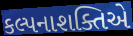
કલ્પનાશક્તિએ